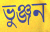
ভুঞ্জন